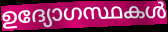
ഉദ്യോഗസ്ഥകൾ